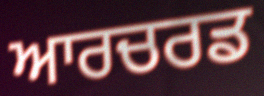
ਆਰਚਰਡ